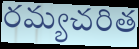
రమ్యచరిత